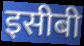
इसीबी